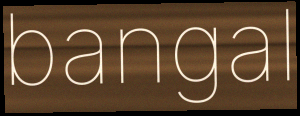
bangal